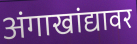
अंगाखांद्यावर